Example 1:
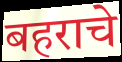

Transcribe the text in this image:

बहराचे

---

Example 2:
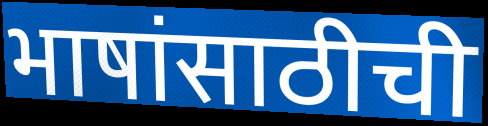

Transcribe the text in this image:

भाषांसाठीची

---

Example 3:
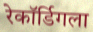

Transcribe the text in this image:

रेकॉर्डिगला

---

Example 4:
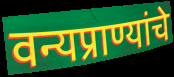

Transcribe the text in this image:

वन्यप्राण्यांचे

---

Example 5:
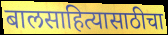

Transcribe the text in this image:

बालसाहित्यासाठीचा